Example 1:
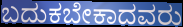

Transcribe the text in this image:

ಬದುಕಬೇಕಾದವರು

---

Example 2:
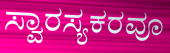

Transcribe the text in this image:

ಸ್ವಾರಸ್ಯಕರವೂ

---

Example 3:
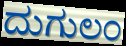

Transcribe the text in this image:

ದುಗುಲಂ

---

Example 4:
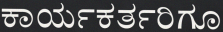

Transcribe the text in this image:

ಕಾರ್ಯಕರ್ತರಿಗೂ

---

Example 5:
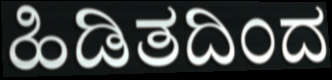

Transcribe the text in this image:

ಹಿಡಿತದಿಂದ